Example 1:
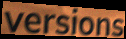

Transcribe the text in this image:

versions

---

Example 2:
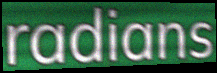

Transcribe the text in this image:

radians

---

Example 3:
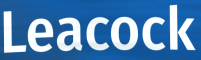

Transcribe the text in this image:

Leacock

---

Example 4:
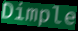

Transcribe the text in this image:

Dimple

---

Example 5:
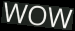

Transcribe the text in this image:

WOW